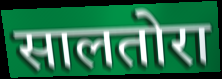
सालतोरा